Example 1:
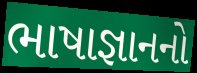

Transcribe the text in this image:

ભાષાજ્ઞાનનો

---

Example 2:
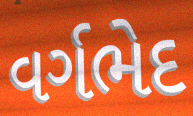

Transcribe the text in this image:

વર્ગભેદ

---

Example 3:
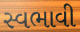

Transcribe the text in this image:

સ્વભાવી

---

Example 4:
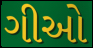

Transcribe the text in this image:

ગીઓ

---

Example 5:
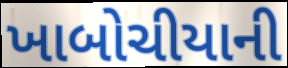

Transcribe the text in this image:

ખાબોચીયાની